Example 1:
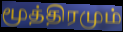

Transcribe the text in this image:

மூத்திரமும்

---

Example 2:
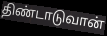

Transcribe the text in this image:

திண்டாடுவான்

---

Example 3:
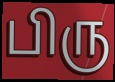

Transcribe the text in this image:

பிரு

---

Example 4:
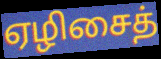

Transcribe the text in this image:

ஏழிசைத்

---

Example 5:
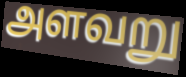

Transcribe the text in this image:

அளவறு